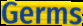
Germs